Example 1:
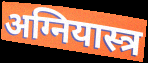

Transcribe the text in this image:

अग्नियास्त्र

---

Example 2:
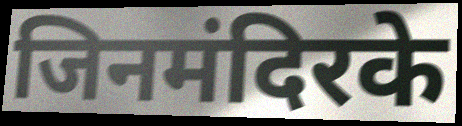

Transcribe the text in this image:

जिनमंदिरके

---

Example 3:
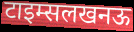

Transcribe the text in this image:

टाइम्सलखनऊ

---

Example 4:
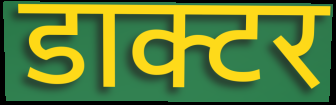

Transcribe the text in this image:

डाक्टर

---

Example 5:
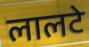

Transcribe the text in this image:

लालटे